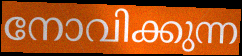
നോവിക്കുന്ന